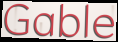
Gable